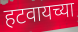
हटवायच्या